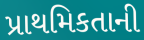
પ્રાથમિકતાની